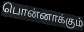
பொன்னாக்கும்